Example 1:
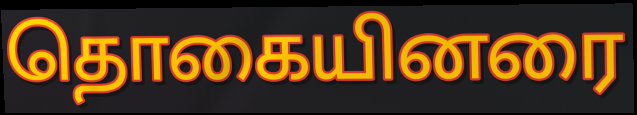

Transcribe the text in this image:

தொகையினரை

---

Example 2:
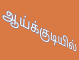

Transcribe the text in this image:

ஆய்க்குடியில்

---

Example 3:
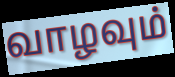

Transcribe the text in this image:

வாழவும்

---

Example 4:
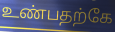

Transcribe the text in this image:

உண்பதற்கே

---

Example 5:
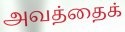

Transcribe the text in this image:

அவத்தைக்